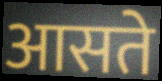
आसते